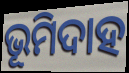
ଭୂମିଦାହ